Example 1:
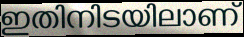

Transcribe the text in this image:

ഇതിനിടയിലാണ്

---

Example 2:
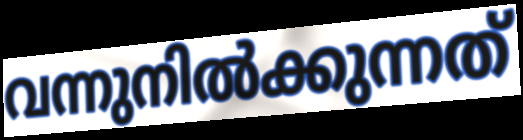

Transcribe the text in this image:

വന്നുനിൽക്കുന്നത്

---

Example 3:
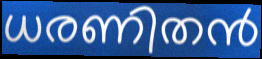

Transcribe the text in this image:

ധരണിതൻ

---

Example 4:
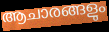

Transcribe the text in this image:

ആചാരങ്ങളും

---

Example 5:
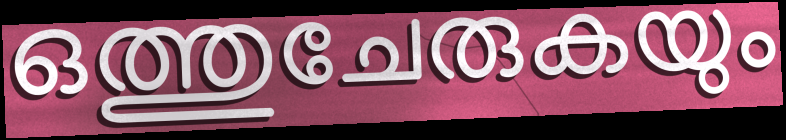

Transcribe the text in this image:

ഒത്തുചേരുകയും